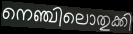
നെഞ്ചിലൊതുക്കി